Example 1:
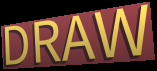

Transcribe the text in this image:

DRAW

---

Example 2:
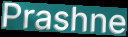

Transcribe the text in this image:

Prashne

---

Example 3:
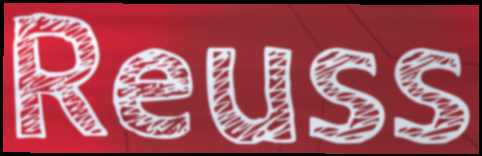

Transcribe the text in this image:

Reuss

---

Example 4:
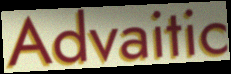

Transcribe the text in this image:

Advaitic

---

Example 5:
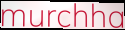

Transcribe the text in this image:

murchha